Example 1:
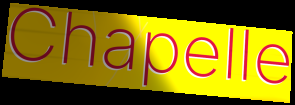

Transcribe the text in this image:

Chapelle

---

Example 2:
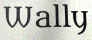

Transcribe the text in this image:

Wally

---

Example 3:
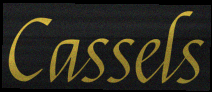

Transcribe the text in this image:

Cassels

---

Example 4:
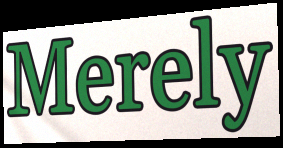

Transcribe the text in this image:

Merely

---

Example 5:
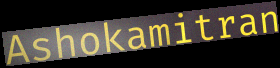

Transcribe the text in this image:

Ashokamitran